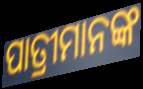
ପାତ୍ରୀମାନଙ୍କ